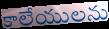
కాలేయులను